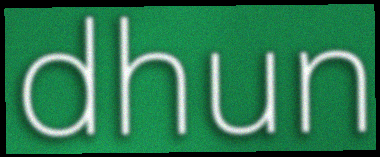
dhun